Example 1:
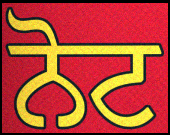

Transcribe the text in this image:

ਨੋਟ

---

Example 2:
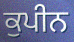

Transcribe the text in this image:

ਕੁਪੀਨ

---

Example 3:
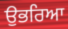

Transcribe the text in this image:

ਉਭਰਿਆ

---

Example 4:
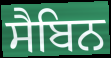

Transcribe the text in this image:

ਸੈਬਿਨ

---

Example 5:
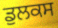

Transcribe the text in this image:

ਡੁਲਕਸ